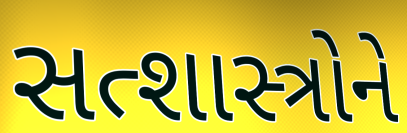
સત્શાસ્ત્રોને